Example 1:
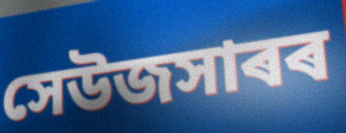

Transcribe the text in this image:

সেউজসাৰৰ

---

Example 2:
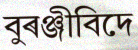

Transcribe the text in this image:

বুৰঞ্জীবিদে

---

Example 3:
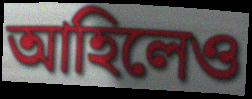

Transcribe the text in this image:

আহিলেও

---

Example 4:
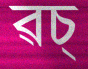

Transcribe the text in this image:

ৱচ্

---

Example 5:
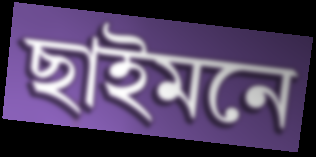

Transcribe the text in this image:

ছাইমনে